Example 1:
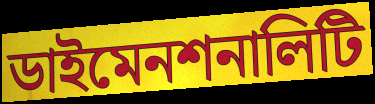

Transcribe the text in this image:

ডাইমেনশনালিটি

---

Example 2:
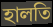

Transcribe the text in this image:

হালতি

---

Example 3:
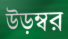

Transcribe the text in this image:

উড়ম্বর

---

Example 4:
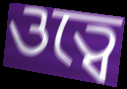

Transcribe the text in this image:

ওত্বে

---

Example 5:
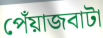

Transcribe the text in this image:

পেঁয়াজবাটা